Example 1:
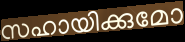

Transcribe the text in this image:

സഹായിക്കുമോ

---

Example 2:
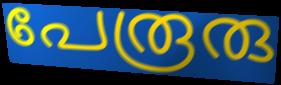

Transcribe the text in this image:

പേരൂരു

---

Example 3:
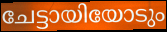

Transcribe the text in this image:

ചേട്ടായിയോടും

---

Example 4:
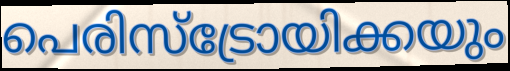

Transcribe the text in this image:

പെരിസ്ട്രോയിക്കയും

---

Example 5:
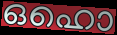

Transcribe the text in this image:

ഒഹൊ